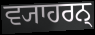
ਵ੍ਯਾਹਰਨ੍